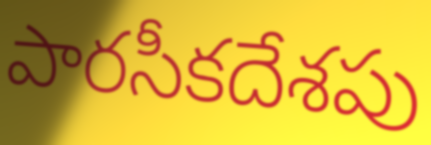
పారసీకదేశపు